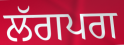
ਲੱਗਪਗ